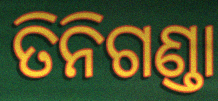
ତିନିଗଣ୍ଡା